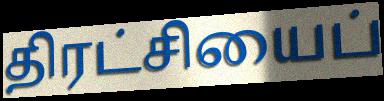
திரட்சியைப்